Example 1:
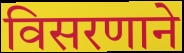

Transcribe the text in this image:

विसरणाने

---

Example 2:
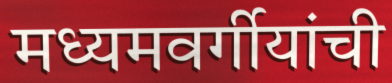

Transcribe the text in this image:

मध्यमवर्गीयांची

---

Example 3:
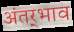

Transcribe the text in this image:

अंतर्भाव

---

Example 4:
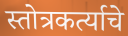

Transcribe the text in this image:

स्तोत्रकर्त्याचे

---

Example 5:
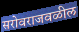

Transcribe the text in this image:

सरोवराजवळील